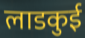
लाडकुई